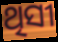
ଥିସୀ